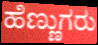
ಹೆಣ್ಣುಗರು